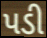
પડી